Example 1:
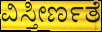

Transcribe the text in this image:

ವಿಸ್ತೀರ್ಣತೆ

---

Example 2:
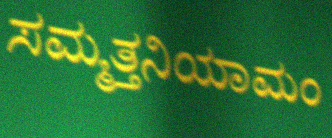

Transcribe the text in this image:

ಸಮ್ಮತ್ತನಿಯಾಮಂ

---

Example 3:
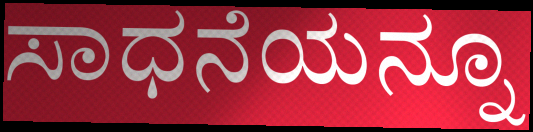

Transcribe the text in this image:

ಸಾಧನೆಯನ್ನೂ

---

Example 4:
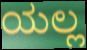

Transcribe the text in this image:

ಯಲ್ಲ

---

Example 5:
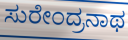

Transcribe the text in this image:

ಸುರೇಂದ್ರನಾಥ